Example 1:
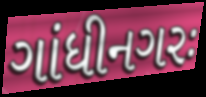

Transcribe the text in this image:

ગાંધીનગરઃ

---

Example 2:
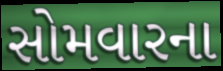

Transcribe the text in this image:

સોમવારના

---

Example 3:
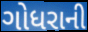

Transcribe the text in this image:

ગોધરાની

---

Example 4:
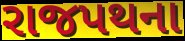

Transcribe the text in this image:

રાજપથના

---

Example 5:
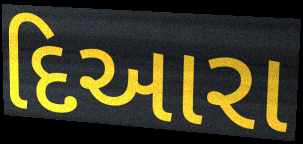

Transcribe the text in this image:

દિઆરા